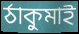
ঠাকুমাই